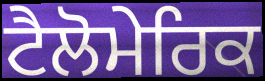
ਟੈਲੋਮੇਰਿਕ